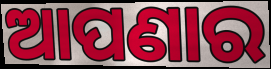
ଆପଣାର